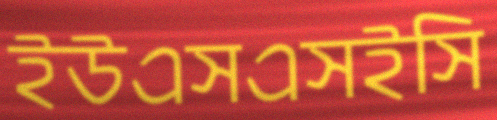
ইউএসএসইসি